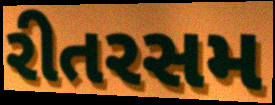
રીતરસમ